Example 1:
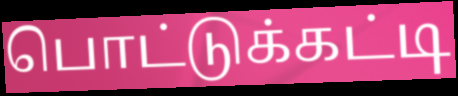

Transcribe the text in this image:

பொட்டுக்கட்டி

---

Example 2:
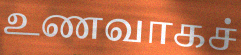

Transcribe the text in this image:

உணவாகச்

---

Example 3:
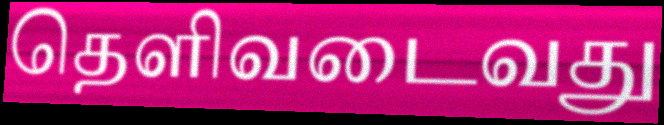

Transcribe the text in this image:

தெளிவடைவது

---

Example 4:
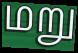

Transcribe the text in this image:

மறு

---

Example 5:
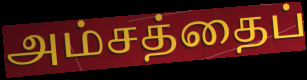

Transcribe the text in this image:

அம்சத்தைப்